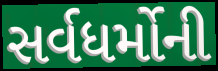
સર્વધર્મોની